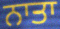
ਨਾਤਾ